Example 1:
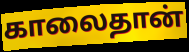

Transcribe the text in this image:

காலைதான்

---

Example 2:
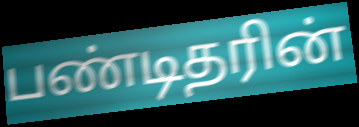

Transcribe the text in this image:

பண்டிதரின்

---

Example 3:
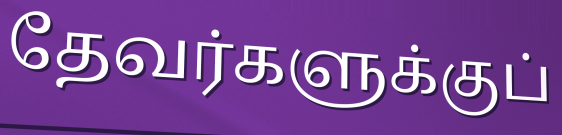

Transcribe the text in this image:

தேவர்களுக்குப்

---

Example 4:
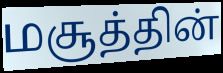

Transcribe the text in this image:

மசூத்தின்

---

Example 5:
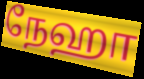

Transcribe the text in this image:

நேஹா